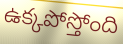
ఉక్కపోస్తోంది